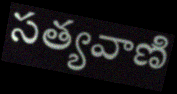
సత్యవాణి